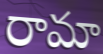
రామా